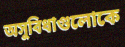
অসুবিধাগুলোকে